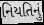
નિયતિનું